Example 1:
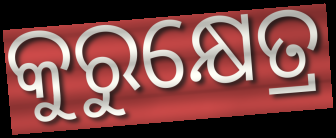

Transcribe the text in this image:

କୁରୁକ୍ଷେତ୍ର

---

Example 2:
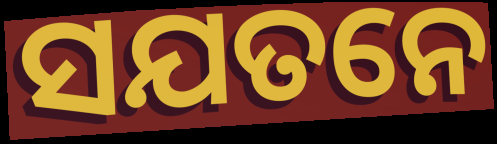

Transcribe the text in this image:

ସଯତନେ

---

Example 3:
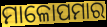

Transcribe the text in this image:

ମାଳୋପମାର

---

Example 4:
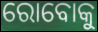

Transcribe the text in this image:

ରୋବୋକୁ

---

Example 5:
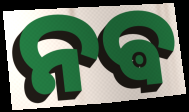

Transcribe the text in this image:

ନଵ